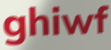
ghiwf